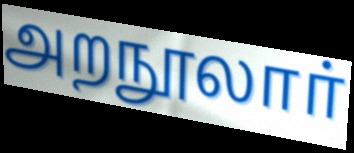
அறநூலார்